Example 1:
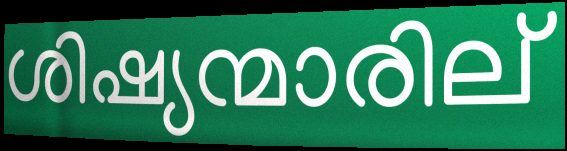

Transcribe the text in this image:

ശിഷ്യന്മാരില്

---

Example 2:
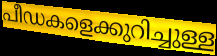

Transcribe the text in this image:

പീഡകളെക്കുറിച്ചുള്ള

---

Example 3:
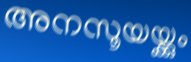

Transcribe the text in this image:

അനസൂയയ്ക്കും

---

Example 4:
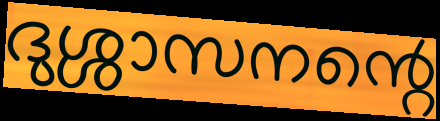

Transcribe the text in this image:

ദുശ്ശാസനന്റെ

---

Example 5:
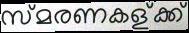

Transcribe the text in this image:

സ്മരണകള്ക്ക്